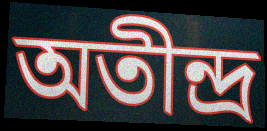
অতীন্দ্র